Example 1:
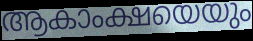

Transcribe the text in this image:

ആകാംക്ഷയെയും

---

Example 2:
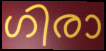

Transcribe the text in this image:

ഗിരാ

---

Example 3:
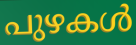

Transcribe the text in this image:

പുഴകൾ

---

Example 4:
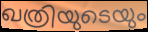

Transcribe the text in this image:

ഖത്രിയുടെയും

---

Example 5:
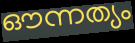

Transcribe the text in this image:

ഔന്നത്യം